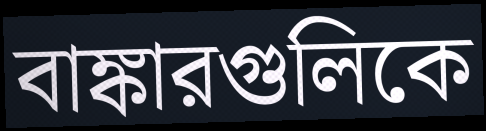
বাঙ্কারগুলিকে